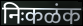
निःकळंक